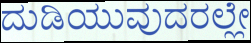
ದುಡಿಯುವುದರಲ್ಲೇ